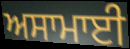
ਅਸਾਮਾਈ